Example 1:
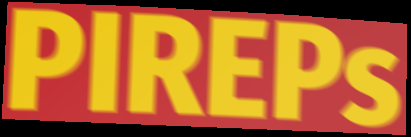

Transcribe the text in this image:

PIREPs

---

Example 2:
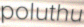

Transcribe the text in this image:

poluthu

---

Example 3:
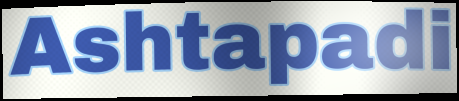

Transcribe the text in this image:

Ashtapadi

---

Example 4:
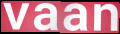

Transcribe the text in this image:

vaan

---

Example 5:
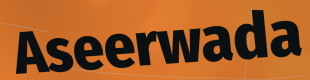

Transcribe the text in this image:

Aseerwada